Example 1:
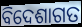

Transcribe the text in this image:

ବିଦେଶାଗତ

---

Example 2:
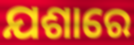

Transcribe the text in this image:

ଯଶାରେ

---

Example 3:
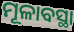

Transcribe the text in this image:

ମୂଳାବସ୍ଥା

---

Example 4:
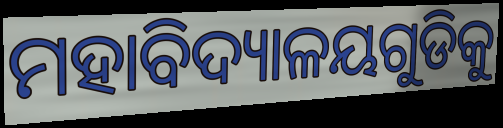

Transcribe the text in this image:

ମହାବିଦ୍ୟାଳୟଗୁଡିକୁ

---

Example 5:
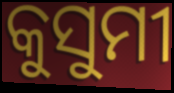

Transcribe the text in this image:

କୁସୁମୀ